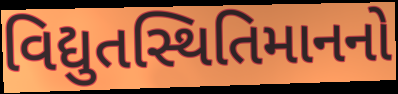
વિદ્યુતસ્થિતિમાનનો